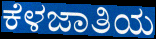
ಕೆಳಜಾತಿಯ